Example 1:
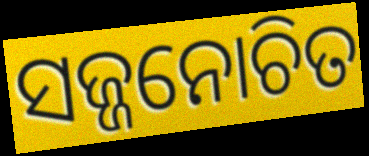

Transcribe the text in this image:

ସଜ୍ଜନୋଚିତ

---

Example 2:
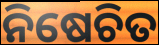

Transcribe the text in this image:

ନିଷେଚିତ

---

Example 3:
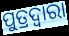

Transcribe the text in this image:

ପୁତ୍ରଦ୍ୱାରା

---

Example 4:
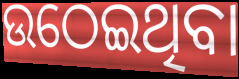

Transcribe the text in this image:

ଉଠେଇଥିବା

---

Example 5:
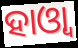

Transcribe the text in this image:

ହାଓ୍ୱା